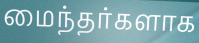
மைந்தர்களாக